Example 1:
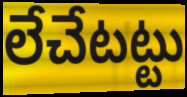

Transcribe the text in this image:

లేచేటట్టు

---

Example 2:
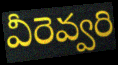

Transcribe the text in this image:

వీరెవ్వరి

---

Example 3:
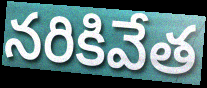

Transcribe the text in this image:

నరికివేత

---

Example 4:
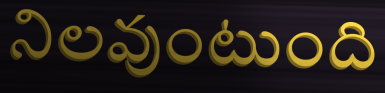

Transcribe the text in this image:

నిలవుంటుంది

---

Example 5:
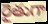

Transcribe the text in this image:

రైతుగా